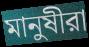
মানুষীরা